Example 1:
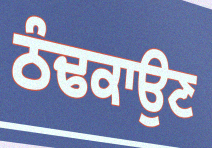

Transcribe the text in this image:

ਠੰਢਕਾਉਣ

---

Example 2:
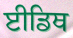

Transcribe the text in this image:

ਈਡਿਥ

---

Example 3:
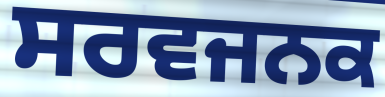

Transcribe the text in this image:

ਸਰਵਜਨਕ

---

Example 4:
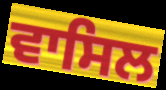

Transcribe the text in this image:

ਵਾਸਿਲ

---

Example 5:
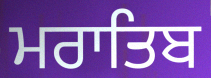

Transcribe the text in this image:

ਮਰਾਤਿਬ